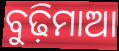
ବୁଢ଼ିମାଆ